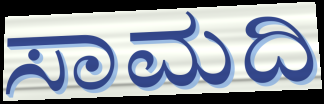
ಸಾಮದಿ